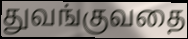
துவங்குவதை